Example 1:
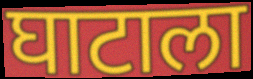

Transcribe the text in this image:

घाटाला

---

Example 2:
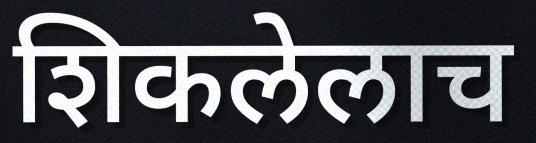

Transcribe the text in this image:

शिकलेलाच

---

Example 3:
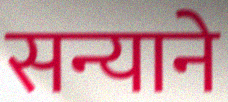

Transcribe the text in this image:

सन्याने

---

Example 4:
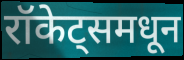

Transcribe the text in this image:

रॉकेट्समधून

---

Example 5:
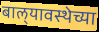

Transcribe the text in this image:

बाल्यावस्थेच्या